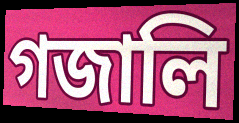
গজালি